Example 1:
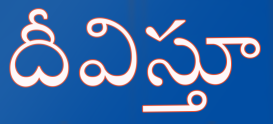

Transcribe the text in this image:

దీవిస్తూ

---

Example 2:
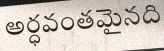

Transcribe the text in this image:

అర్ధవంతమైనది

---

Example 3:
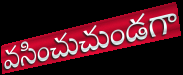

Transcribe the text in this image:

వసించుచుండగా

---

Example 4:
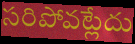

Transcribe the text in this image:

సరిపోవట్లేదు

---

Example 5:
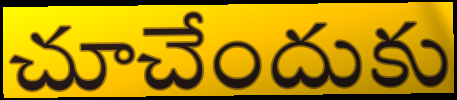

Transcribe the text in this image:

చూచేందుకు